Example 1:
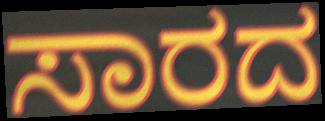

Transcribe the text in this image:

ಸಾರದ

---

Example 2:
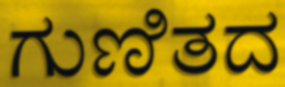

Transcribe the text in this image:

ಗುಣಿತದ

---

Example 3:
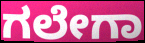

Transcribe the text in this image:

ಗಲೇಗಾ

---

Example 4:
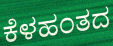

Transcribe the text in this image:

ಕೆಳಹಂತದ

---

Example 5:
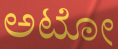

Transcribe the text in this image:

ಅಟೋ